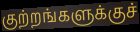
குற்றங்களுக்குச்